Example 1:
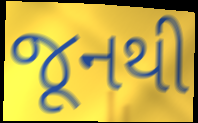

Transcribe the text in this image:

જૂનથી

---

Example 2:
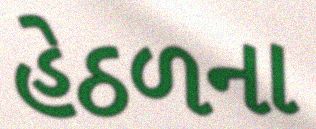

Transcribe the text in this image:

હેઠળના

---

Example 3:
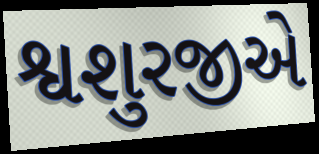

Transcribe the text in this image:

શ્વશુરજીએ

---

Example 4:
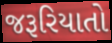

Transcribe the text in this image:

જરૂરિયાતો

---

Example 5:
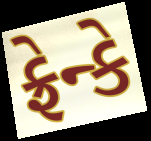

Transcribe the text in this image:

ફ્રેન્કે